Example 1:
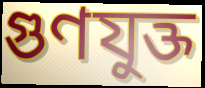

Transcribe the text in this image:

গুণযুক্ত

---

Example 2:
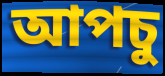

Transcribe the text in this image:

আপচু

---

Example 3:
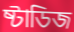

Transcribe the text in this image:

ষ্টাডিজ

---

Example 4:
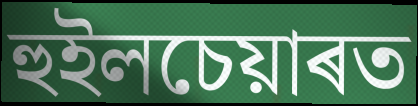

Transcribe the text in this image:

হুইলচেয়াৰত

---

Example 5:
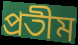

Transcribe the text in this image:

প্ৰতীম